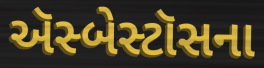
ઍસ્બેસ્ટૉસના